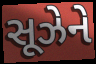
સૂઝેને